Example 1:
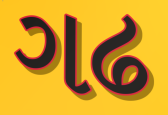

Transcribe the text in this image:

ગઢ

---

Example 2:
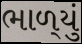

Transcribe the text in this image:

ભાળ્‌યું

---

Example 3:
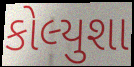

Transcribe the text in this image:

કોલ્યુશા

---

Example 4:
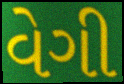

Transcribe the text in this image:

વેગી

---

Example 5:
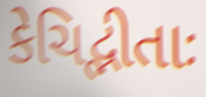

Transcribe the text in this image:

કેચિદ્ભીતાઃ